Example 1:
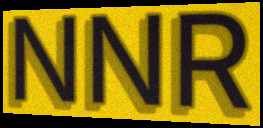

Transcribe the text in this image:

NNR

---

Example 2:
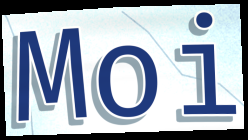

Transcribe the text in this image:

Moi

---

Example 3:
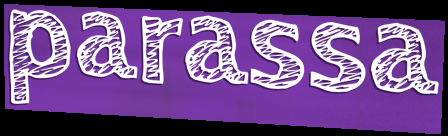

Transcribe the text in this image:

parassa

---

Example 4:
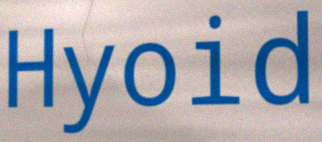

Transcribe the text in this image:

Hyoid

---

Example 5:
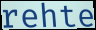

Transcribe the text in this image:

rehte